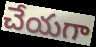
చేయగా